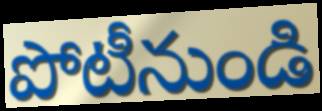
పోటీనుండి